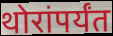
थोरांपर्यंत